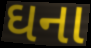
ઘના